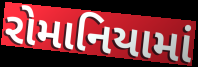
રોમાનિયામાં